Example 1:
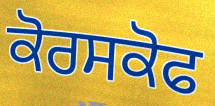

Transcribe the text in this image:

ਕੋਰਸਕੋਫ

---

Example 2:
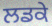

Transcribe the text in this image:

ਲਡਕੇ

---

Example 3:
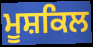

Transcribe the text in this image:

ਮੂਸ਼ਕਿਲ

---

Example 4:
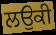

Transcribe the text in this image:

ਲਉਕੀ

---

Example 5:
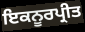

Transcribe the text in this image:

ਇਕਨੂਰਪ੍ਰੀਤ